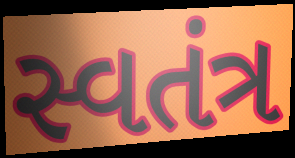
સ્વતંત્ર